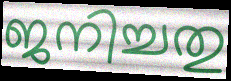
ജനിച്ചതു